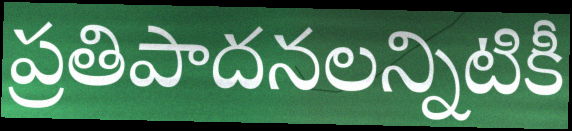
ప్రతిపాదనలన్నిటికీ